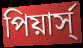
পিয়ার্স্